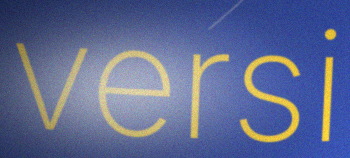
versi